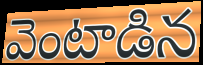
వెంటాడిన